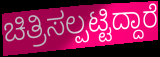
ಚಿತ್ರಿಸಲ್ಪಟ್ಟಿದ್ದಾರೆ